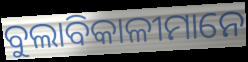
ବୁଲାବିକାଳୀମାନେ